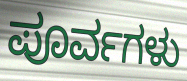
ಪೂರ್ವಗಳು